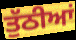
ਤੁੱਠੀਆਂ